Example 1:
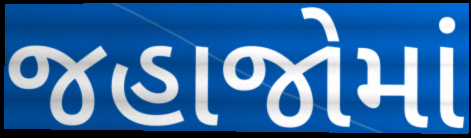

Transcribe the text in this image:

જહાજોમાં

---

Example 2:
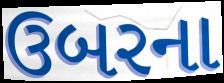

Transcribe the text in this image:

ઉબરના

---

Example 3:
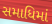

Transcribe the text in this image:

સમાધિમાં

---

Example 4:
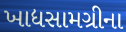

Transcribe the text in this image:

ખાદ્યસામગ્રીના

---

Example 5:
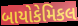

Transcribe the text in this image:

બાયોકેમિકલ